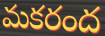
మకరంద